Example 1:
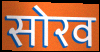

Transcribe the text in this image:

सोरव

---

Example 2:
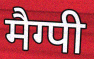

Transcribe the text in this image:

मैग्पी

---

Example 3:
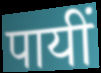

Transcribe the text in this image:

पायीं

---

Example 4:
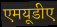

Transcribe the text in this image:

एमयूडीए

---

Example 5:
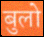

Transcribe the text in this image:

बुलो